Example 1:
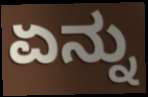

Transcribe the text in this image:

ಏನ್ನು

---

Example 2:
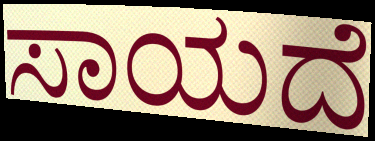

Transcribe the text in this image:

ಸಾಯದೆ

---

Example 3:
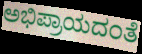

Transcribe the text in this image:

ಅಭಿಪ್ರಾಯದಂತೆ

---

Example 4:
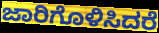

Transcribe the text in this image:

ಜಾರಿಗೊಳಿಸಿದರೆ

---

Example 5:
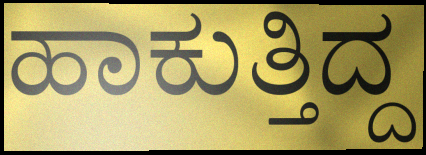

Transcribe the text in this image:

ಹಾಕುತ್ತಿದ್ದ